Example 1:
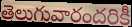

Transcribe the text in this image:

తెలుగువారందరికీ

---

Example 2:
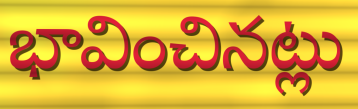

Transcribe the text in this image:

భావించినట్లు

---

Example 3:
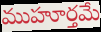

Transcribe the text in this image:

ముహూర్తమే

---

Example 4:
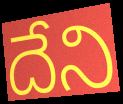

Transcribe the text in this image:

దేని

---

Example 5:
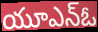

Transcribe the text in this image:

యూఎన్ఓ